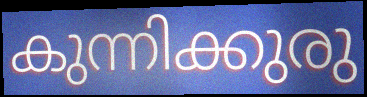
കുന്നിക്കുരു